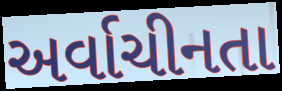
અર્વાચીનતા